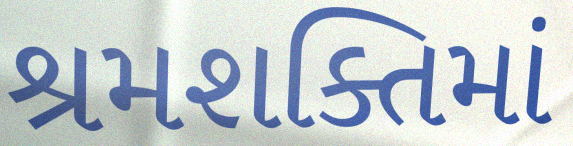
શ્રમશક્તિમાં